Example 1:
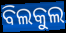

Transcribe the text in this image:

ବିଲକୁଲ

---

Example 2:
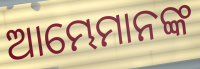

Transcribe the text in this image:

ଆମ୍ଭେମାନଙ୍କ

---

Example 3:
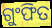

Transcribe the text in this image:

ଗୁଂଫିତ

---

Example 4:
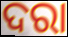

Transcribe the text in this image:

ଦରା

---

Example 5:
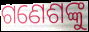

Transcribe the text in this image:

ଗଣେଶଙ୍କୁ